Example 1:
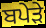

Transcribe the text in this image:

ਬਪੇੜੇ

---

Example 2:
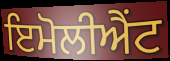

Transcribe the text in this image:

ਇਮੋਲੀਐਂਟ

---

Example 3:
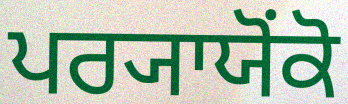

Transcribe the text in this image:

ਪਰ੍ਯਾਯੋਂਕੋ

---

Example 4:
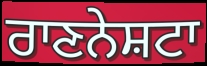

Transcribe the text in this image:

ਰਾਣਨੇਸ਼ਟਾ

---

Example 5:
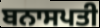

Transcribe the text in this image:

ਬਨਾਸਪਤੀ